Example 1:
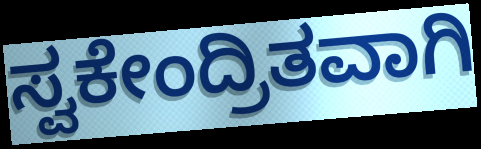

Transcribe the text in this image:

ಸ್ವಕೇಂದ್ರಿತವಾಗಿ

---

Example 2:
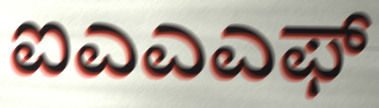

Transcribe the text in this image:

ಐಎಎಎಫ್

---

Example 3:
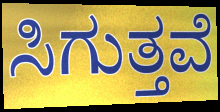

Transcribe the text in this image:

ಸಿಗುತ್ತವೆ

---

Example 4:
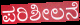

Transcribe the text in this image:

ಪರಿಶೀಲನೆ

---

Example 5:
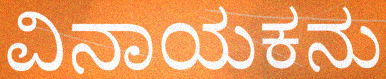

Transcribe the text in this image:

ವಿನಾಯಕನು